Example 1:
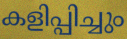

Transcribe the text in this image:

കളിപ്പിച്ചും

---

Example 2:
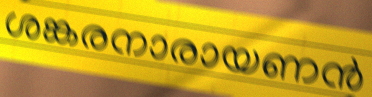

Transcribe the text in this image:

ശങ്കരനാരായണൻ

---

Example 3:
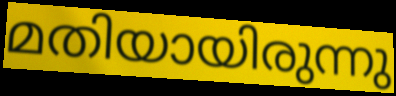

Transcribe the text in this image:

മതിയായിരുന്നു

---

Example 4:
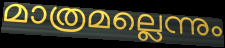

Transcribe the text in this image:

മാത്രമല്ലെന്നും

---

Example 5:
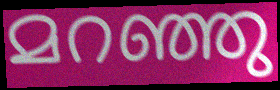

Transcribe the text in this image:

മറഞ്ഞു